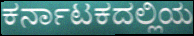
ಕರ್ನಾಟಕದಲ್ಲಿಯ